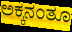
ಅಕ್ಕನಂತೂ